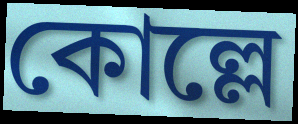
কোল্লে